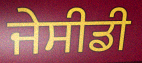
ਜੇਸੀਡੀ